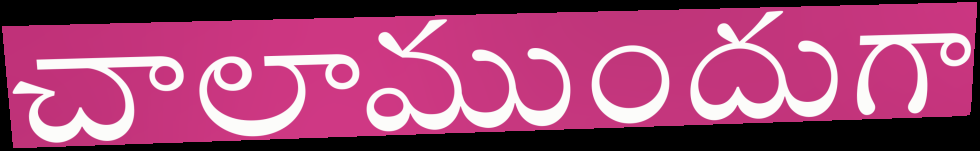
చాలాముందుగా